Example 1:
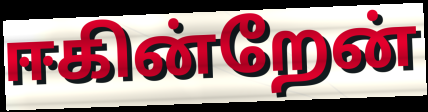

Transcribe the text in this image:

ஈகின்றேன்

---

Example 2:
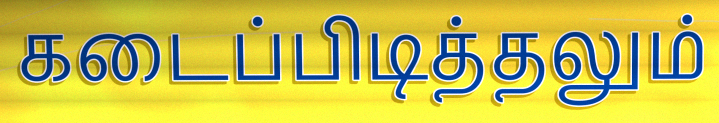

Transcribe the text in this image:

கடைப்பிடித்தலும்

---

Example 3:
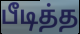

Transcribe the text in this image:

பீடித்த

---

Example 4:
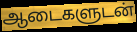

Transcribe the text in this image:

ஆடைகளுடன்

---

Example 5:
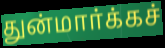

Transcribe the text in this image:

துன்மார்க்கச்